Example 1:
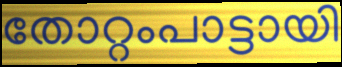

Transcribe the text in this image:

തോറ്റംപാട്ടായി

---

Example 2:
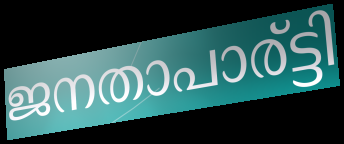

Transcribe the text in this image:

ജനതാപാര്ട്ടി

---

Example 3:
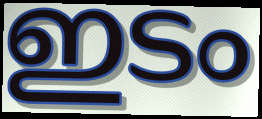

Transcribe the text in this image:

ഇടം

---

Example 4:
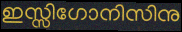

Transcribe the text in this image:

ഇസ്സിഗോനിസിനു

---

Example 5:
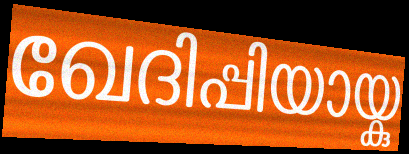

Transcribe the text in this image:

ഖേദിപ്പിയായ്കു